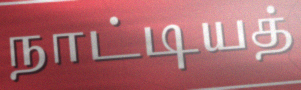
நாட்டியத்